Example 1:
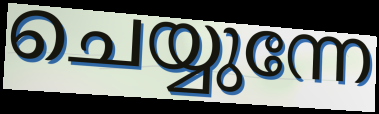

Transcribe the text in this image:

ചെയ്യുന്നേ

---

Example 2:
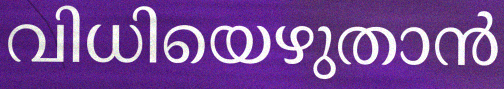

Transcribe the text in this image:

വിധിയെഴുതാൻ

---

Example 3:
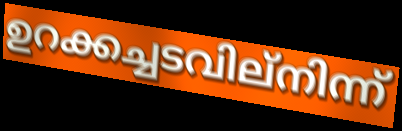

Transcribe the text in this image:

ഉറക്കച്ചടവില്നിന്ന്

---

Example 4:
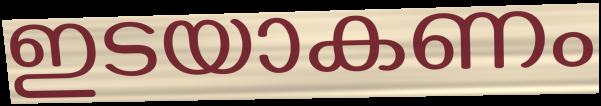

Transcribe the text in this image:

ഇടയാകണം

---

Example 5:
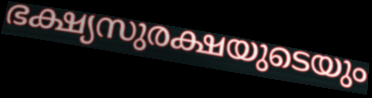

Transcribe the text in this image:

ഭക്ഷ്യസുരക്ഷയുടെയും